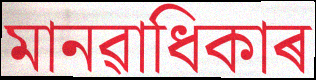
মানৱাধিকাৰ